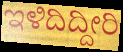
ಇಳಿದಿದ್ದೀರಿ